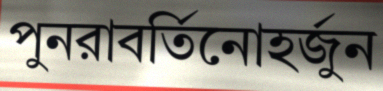
পুনরাবর্তিনোহর্জুন